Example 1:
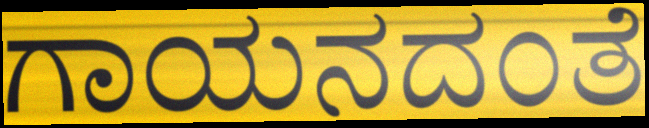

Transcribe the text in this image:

ಗಾಯನದಂತೆ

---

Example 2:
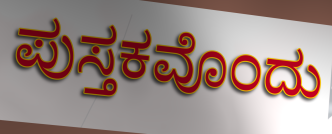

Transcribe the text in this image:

ಪುಸ್ತಕವೊಂದು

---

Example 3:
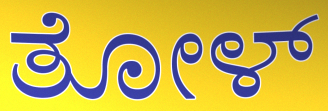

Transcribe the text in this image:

ತೋಳ್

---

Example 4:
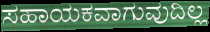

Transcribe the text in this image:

ಸಹಾಯಕವಾಗುವುದಿಲ್ಲ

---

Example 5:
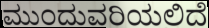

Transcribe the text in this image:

ಮುಂದುವರಿಯಲಿದೆ